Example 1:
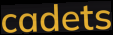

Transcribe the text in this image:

cadets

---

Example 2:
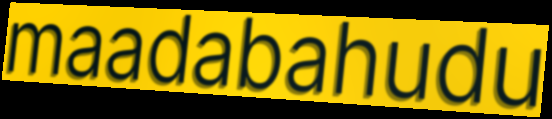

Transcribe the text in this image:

maadabahudu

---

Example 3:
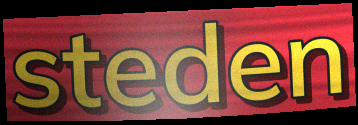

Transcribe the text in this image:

steden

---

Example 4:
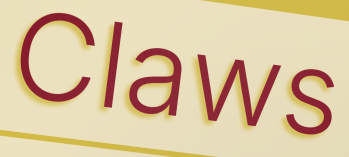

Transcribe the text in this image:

Claws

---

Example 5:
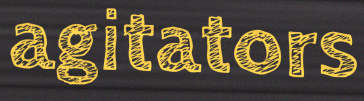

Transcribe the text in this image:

agitators